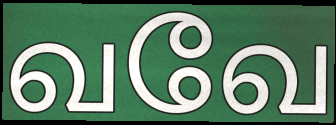
வவே